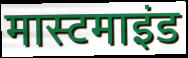
मास्टमाइंड